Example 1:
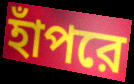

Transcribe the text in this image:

হাঁপরে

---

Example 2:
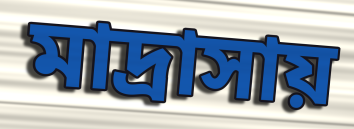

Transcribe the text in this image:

মাদ্রাসায়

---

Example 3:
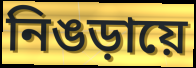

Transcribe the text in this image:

নিঙড়ায়ে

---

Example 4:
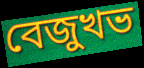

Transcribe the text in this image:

বেজুখভ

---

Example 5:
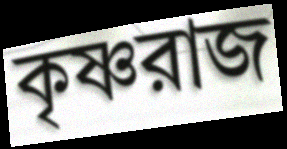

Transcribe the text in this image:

কৃষ্ণরাজ